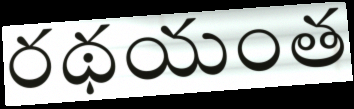
రథయంత